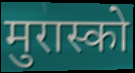
मुरास्को